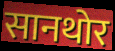
सानथोर